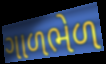
ગાળભેળ